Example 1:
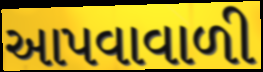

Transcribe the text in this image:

આપવાવાળી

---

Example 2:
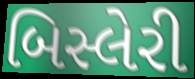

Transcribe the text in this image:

બિસ્લેરી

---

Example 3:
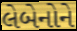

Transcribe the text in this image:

લેબેનોને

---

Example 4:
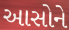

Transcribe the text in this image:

આસોને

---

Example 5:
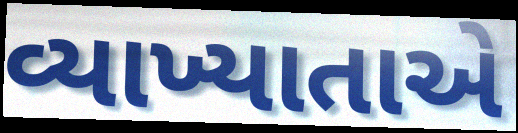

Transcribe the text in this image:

વ્યાખ્યાતાએ